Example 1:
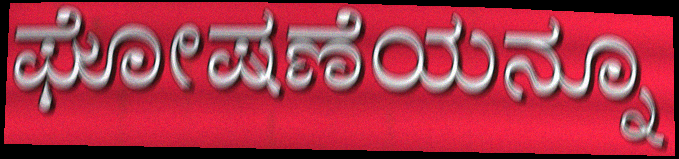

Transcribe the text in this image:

ಘೋಷಣೆಯನ್ನೂ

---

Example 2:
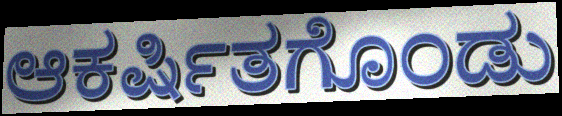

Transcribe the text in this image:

ಆಕರ್ಷಿತಗೊಂಡು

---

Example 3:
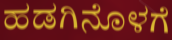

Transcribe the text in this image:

ಹಡಗಿನೊಳಗೆ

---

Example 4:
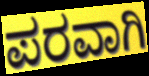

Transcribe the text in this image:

ಪರವಾಗಿ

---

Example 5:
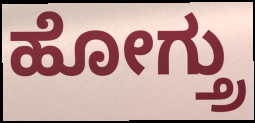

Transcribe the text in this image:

ಹೋಗ್ತ್ರು